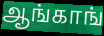
ஆங்காங்